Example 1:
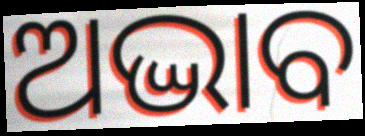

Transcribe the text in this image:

ଅଦ୍ଭାବ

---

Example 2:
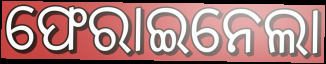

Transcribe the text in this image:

ଫେରାଇନେଲା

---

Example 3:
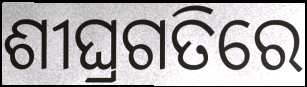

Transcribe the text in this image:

ଶୀଘ୍ରଗତିରେ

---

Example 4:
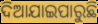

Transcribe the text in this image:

ଦିଆଯାଇପାରୁଛି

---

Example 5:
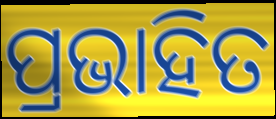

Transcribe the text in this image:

ପ୍ରଭାହିତ